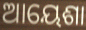
ଆୟେଶା